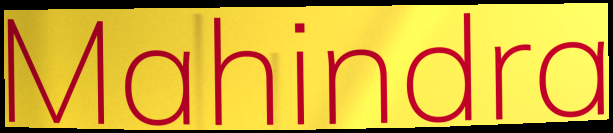
Mahindra